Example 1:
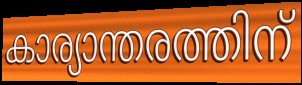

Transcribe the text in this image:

കാര്യാന്തരത്തിന്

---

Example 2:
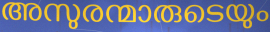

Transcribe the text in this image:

അസുരന്മാരുടെയും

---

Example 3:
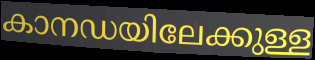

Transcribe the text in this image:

കാനഡയിലേക്കുള്ള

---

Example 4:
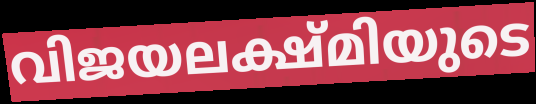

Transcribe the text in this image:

വിജയലക്ഷ്മിയുടെ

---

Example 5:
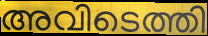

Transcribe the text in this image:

അവിടെത്തി